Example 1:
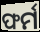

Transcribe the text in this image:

ଫର୍ମ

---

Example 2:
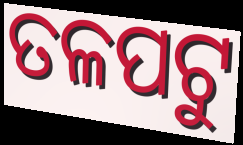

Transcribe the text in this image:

ତଳପଟୁ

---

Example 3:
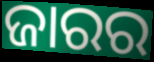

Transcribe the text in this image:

ଜାରର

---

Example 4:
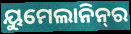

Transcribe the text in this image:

ୟୁମେଲାନିନ୍‌ର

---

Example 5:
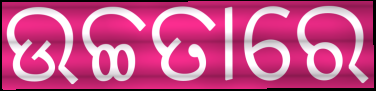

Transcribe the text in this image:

ଉଚ୍ଚତାରେ